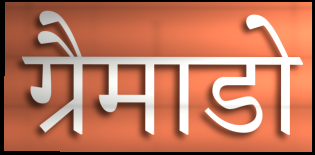
ग्रैमाडो